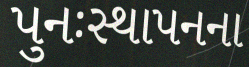
પુનઃસ્થાપનના